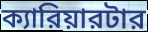
ক্যারিয়ারটার